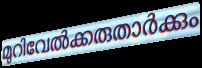
മുറിവേൽക്കരുതാർക്കും